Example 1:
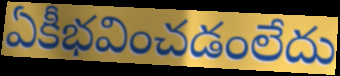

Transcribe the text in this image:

ఏకీభవించడంలేదు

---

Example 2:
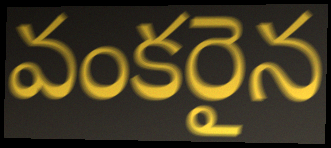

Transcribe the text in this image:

వంకరైన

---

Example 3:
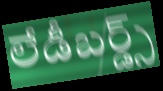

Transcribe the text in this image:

లేడీబర్డ్స్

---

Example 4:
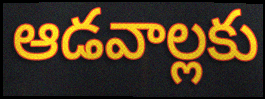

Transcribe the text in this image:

ఆడవాల్లకు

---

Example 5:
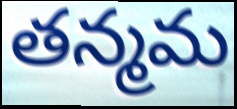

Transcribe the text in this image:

తన్మమ